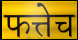
फत्तेच